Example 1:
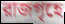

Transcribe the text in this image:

রাজগৃহে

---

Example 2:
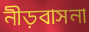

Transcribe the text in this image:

নীড়বাসনা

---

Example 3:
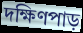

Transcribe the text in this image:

দক্ষিণপাড়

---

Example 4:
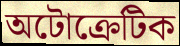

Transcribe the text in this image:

অটোক্রেটিক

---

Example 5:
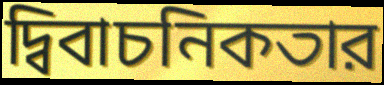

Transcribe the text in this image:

দ্বিবাচনিকতার